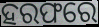
ହରଫରେ